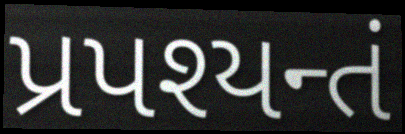
પ્રપશ્યન્તં